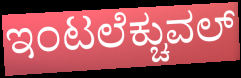
ಇಂಟಲೆಕ್ಚುವಲ್